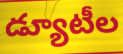
డ్యూటీల